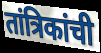
तांत्रिकांची